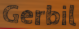
Gerbil